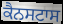
ਕੈਨਸਟਾਸ